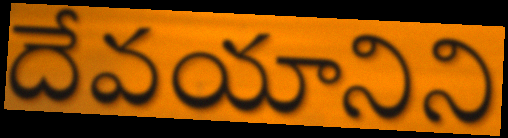
దేవయానిని